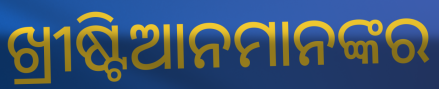
ଖ୍ରୀଷ୍ଟିଆନମାନଙ୍କର